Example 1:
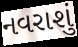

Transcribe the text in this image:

નવરાશું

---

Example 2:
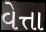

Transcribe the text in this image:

વેત્તા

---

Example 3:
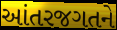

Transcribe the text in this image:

આંતરજગતને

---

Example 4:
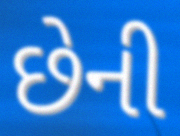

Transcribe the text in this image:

છેની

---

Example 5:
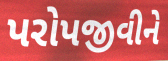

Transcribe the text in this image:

પરોપજીવીને